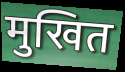
मुखित